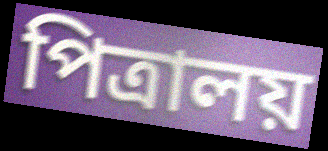
পিত্রালয়